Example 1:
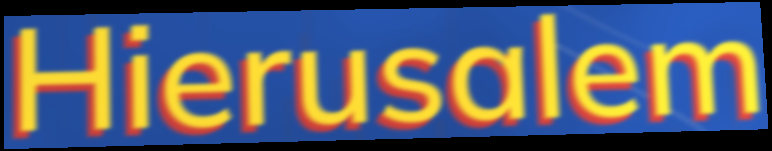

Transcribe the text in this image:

Hierusalem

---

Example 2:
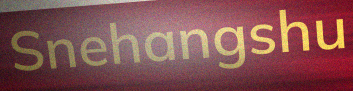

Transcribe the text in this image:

Snehangshu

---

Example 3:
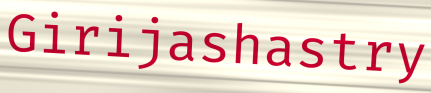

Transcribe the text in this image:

Girijashastry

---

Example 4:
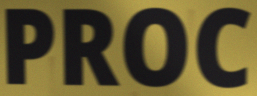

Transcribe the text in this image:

PROC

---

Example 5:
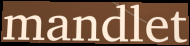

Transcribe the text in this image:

mandlet